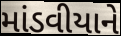
માંડવીયાને